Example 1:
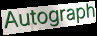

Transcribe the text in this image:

Autograph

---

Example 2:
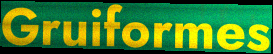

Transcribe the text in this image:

Gruiformes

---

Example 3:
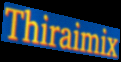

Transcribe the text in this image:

Thiraimix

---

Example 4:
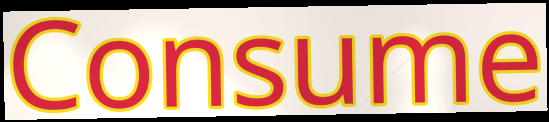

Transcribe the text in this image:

Consume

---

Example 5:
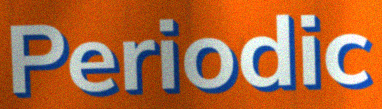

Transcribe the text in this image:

Periodic